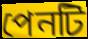
পেনটি